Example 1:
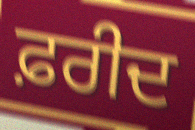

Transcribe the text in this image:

ਫ਼ਰੀਦ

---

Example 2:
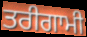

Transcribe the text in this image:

ਤਰੀਗਾਮੀ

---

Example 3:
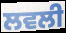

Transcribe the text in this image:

ਲਵਲੀ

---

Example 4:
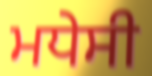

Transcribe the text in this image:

ਮਧੇਸੀ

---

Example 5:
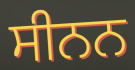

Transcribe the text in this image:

ਸੀਨਨ